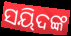
ସୟିଦଙ୍କ